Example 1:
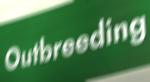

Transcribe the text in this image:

Outbreeding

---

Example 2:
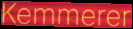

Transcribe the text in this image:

Kemmerer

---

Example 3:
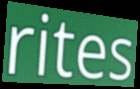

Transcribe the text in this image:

rites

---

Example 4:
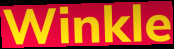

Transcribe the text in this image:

Winkle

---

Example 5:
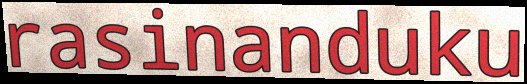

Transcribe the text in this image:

rasinanduku